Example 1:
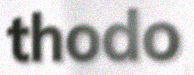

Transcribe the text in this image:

thodo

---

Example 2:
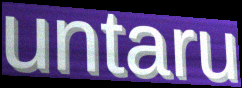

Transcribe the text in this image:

untaru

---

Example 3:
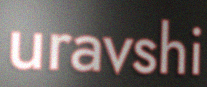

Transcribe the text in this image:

uravshi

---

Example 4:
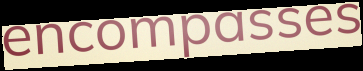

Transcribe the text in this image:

encompasses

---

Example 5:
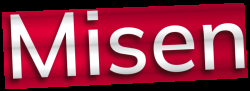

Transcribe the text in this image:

Misen